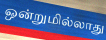
ஒன்றுமில்லாது